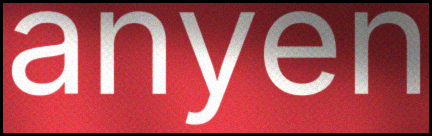
anyen